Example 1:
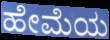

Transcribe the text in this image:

ಹೇಮೆಯ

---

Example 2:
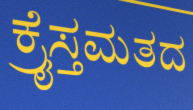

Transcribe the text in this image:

ಕ್ರೈಸ್ತಮತದ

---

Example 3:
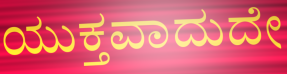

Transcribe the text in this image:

ಯುಕ್ತವಾದುದೇ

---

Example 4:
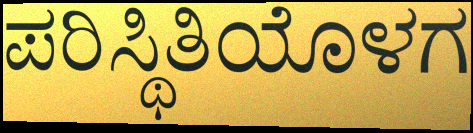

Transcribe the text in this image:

ಪರಿಸ್ಥಿತಿಯೊಳಗ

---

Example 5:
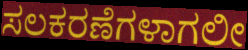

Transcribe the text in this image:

ಸಲಕರಣೆಗಳಾಗಲೀ